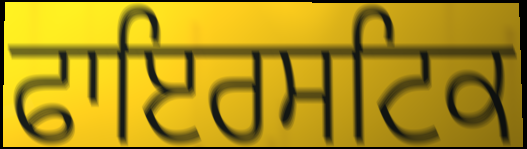
ਫਾਇਰਸਟਿਕ